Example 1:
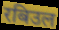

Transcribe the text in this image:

रबिउल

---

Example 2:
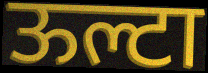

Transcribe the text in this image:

ऊल्टा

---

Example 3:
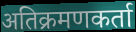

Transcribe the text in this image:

अतिक्रमणकर्ता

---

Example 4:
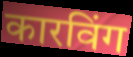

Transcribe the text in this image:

कारविंग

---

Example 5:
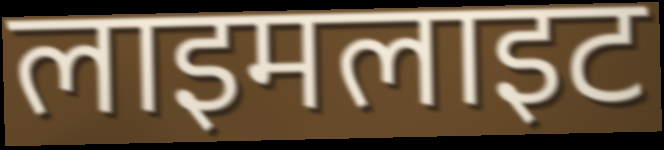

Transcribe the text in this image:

लाइमलाइट